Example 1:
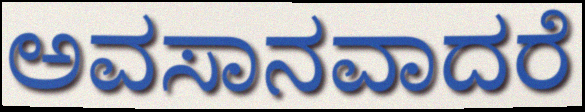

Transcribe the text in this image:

ಅವಸಾನವಾದರೆ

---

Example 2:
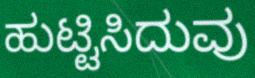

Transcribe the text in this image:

ಹುಟ್ಟಿಸಿದುವು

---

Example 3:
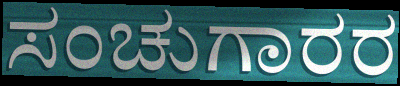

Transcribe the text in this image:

ಸಂಚುಗಾರರ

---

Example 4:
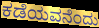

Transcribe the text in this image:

ಕಡೆಯವನೆಂದು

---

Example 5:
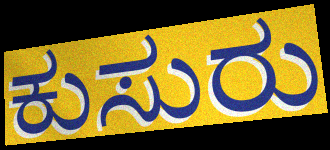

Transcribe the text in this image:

ಕುಸುರು